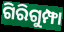
ଗିରିଗୁମ୍ଫା